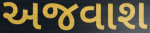
અજવાશ